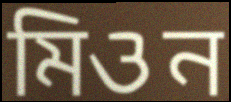
মিওন